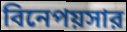
বিনেপয়সার